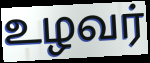
உழவர்